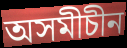
অসমীচীন